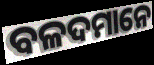
ବଳଦମାନେ